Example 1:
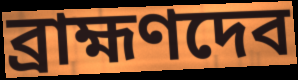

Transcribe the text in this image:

ব্রাহ্মণদেব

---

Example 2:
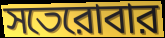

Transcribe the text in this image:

সতেরোবার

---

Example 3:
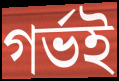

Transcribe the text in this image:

গর্ভই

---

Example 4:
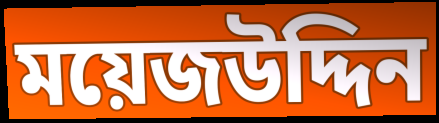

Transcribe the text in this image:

ময়েজউদ্দিন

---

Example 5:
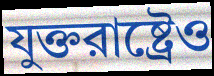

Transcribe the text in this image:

যুক্তরাষ্ট্রেও